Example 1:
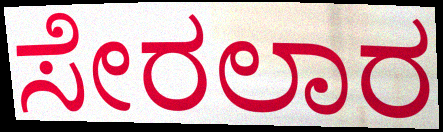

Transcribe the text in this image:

ಸೇರಲಾರ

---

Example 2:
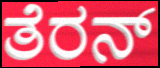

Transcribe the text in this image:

ತೆರನ್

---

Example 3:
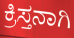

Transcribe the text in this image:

ಕ್ರಿಸ್ತನಾಗಿ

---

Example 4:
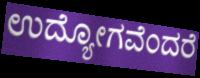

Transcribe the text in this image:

ಉದ್ಯೋಗವೆಂದರೆ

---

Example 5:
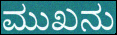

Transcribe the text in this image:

ಮುಖನು